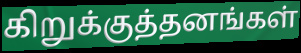
கிறுக்குத்தனங்கள்